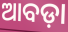
ଆବଡ଼ା